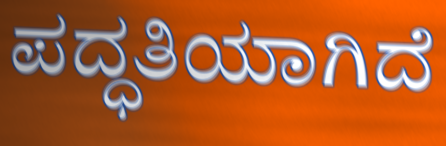
ಪದ್ಧತಿಯಾಗಿದೆ